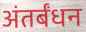
अंतर्बंधन